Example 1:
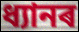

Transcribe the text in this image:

ধ্যানৰ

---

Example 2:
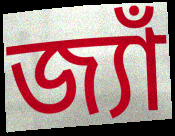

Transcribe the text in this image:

জ্যাঁ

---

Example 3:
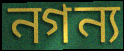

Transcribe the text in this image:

নগন্য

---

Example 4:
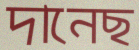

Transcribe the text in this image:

দানেছ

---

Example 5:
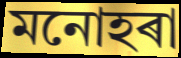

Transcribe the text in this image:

মনোহৰা